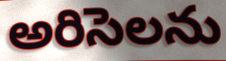
అరిసెలను